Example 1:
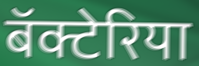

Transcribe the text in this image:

बॅक्टेरिया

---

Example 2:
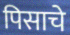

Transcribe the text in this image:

पिसाचे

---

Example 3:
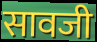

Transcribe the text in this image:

सावजी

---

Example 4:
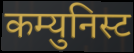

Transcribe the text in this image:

कम्युनिस्ट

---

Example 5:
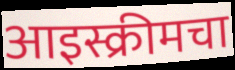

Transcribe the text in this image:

आइस्क्रीमचा